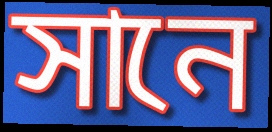
সানে